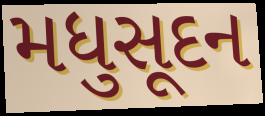
મધુસૂદન